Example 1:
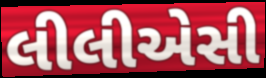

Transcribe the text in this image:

લીલીએસી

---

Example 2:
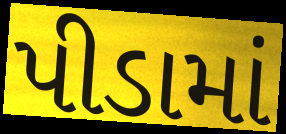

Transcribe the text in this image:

પીડામાં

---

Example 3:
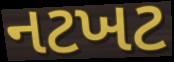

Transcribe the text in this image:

નટખટ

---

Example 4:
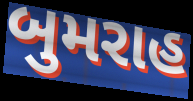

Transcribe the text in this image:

બુમરાહ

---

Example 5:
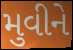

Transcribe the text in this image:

મુવીને